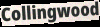
Collingwood